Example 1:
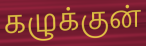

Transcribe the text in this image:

கழுக்குன்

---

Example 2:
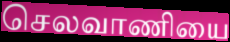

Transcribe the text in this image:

செலவாணியை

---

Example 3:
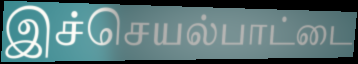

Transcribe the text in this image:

இச்செயல்பாட்டை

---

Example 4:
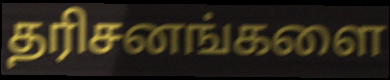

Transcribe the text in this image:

தரிசனங்களை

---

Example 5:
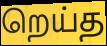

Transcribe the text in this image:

றெய்த